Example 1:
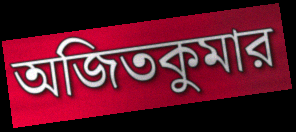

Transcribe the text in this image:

অজিতকুমার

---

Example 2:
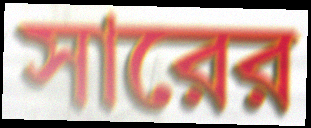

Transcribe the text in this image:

সারের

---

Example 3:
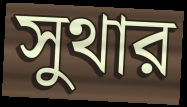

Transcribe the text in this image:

সুথার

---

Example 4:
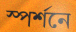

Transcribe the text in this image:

স্পর্শনে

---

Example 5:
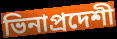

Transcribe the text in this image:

ভিনাপ্রদেশী